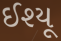
ઈશ્યૂ